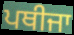
ਪਥੀਜਾ